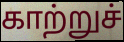
காற்றுச்